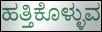
ಹತ್ತಿಕೊಳ್ಳುವ